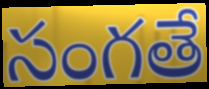
సంగతే